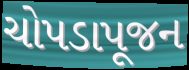
ચોપડાપૂજન